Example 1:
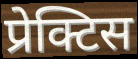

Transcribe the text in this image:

प्रेक्टिस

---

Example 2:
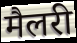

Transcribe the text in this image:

मैलरी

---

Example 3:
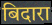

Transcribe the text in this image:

बिदारा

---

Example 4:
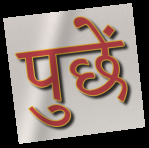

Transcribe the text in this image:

पुछें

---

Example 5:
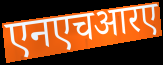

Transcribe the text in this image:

एनएचआरए